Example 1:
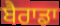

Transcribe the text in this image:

ਬੈਰਾਡਾ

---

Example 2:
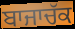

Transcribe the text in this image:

ਬਾਜਾਚੱਕ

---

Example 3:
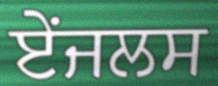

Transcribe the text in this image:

ਏਂਜਲਸ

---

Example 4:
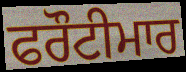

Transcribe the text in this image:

ਫਰੌਟੀਮਾਰ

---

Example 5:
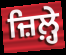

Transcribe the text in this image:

ਜ਼ਿਲ਼੍ਹੇ